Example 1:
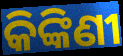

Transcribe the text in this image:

କିଙ୍କିଣୀ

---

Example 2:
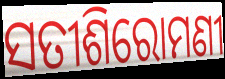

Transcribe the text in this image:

ସତୀଶିରୋମଣୀ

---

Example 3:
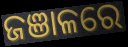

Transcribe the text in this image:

ଜଞାଳରେ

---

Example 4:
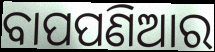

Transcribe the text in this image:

ବାପପଣିଆର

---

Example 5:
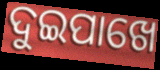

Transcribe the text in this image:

ଦୁଇପାଖେ